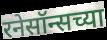
रनेसॉन्सच्या